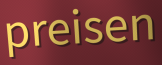
preisen